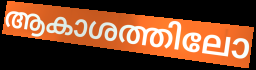
ആകാശത്തിലോ